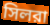
সিলরা